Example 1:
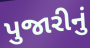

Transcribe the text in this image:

પુજારીનું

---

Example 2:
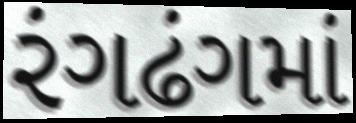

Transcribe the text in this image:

રંગઢંગમાં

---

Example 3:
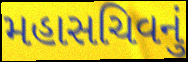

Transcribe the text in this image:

મહાસચિવનું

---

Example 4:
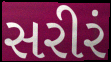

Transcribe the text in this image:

સરીરં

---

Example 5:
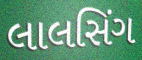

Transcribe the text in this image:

લાલસિંગ